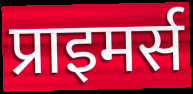
प्राइमर्स